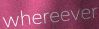
whereever